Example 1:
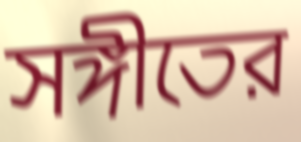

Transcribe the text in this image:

সঙ্গীতের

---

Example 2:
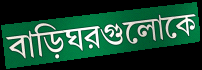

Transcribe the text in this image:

বাড়িঘরগুলোকে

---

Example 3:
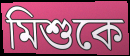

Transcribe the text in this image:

মিশুকে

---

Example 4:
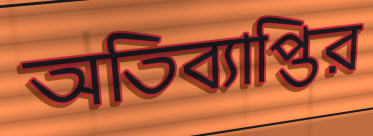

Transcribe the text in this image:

অতিব্যাপ্তির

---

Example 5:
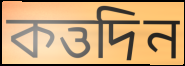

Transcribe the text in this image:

কত্তদিন